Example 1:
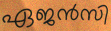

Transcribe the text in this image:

ഏജൻസി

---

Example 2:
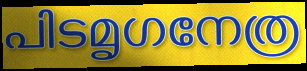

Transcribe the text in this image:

പിടമൃഗനേത്ര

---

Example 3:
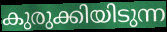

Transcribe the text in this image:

കുരുക്കിയിടുന്ന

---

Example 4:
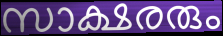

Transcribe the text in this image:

സാക്ഷരരും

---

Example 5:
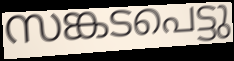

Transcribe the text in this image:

സങ്കടപെട്ടു